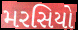
મરસિયો